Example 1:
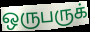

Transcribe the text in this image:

ஒருபருக்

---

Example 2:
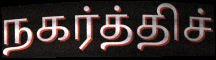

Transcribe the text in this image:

நகர்த்திச்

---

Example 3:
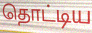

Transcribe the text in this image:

தொட்டிய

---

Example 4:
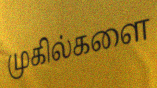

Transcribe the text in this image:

முகில்களை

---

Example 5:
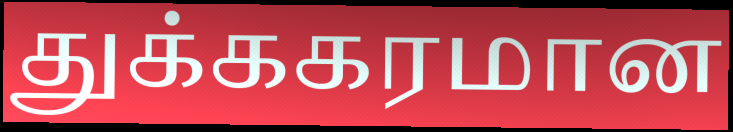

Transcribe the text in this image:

துக்ககரமான